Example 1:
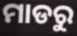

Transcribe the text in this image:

ମାଡରୁ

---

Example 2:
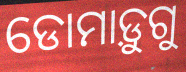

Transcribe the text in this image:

ଡୋମାଡ଼ୁଗୁ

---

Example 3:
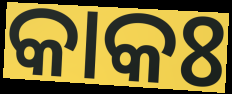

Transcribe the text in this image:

କାକଃ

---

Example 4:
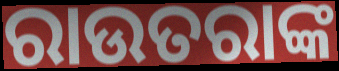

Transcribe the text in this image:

ରାଉତରାଙ୍କ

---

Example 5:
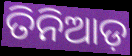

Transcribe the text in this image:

ତିନିଆଡ଼